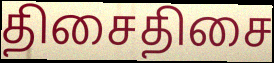
திசைதிசை